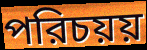
পরিচয়য়